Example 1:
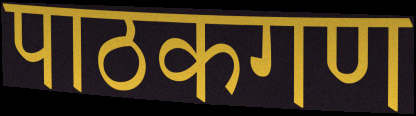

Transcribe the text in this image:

पाठकगण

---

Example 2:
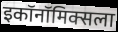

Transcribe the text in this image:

इकॉनॉमिक्सला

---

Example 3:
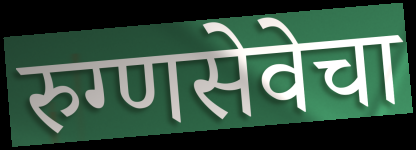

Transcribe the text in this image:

रुग्णसेवेचा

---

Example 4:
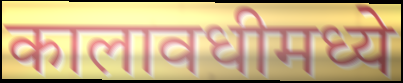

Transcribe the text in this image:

कालावधीमध्ये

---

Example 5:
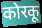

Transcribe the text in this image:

कोरकू